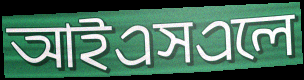
আইএসএলে